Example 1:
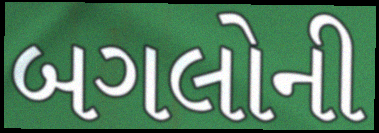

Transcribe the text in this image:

બગલોની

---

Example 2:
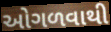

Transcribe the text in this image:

ઓગળવાથી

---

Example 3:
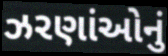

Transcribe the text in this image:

ઝરણાંઓનું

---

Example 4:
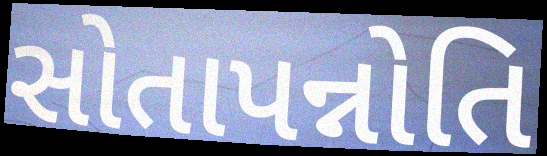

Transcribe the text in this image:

સોતાપન્નોતિ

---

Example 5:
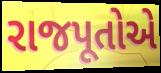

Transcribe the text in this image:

રાજપૂતોએ